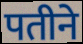
पतीने